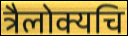
त्रैलोक्यचि